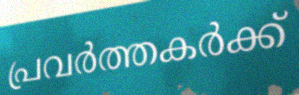
പ്രവർത്തകർക്ക്